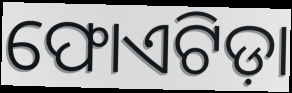
ଫୋଏଟିଡ଼ା